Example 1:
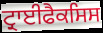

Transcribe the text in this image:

ਟ੍ਰਾਈਫੈਕਸਿਸ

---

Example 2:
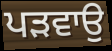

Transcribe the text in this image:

ਪੜਵਾਉ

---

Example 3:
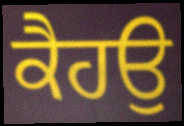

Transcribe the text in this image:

ਕੈਹਉ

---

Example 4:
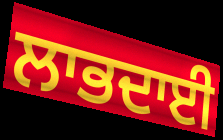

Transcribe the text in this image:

ਲਾਭਦਾਈ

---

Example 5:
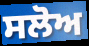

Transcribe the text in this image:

ਸਲੋਅ